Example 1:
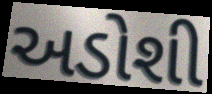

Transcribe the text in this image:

અડોશી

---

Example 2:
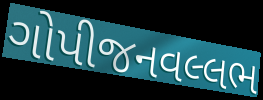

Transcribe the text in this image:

ગોપીજનવલ્લભ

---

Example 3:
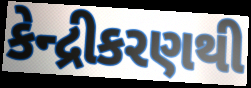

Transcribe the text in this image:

કેન્દ્રીકરણથી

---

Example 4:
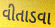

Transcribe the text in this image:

વીતાડવા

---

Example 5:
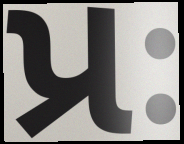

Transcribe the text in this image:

પ્રઃ